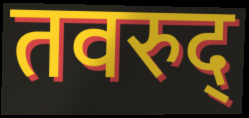
तवरुद्